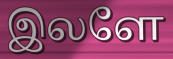
இலளே